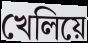
খেলিয়ে